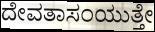
ದೇವತಾಸಂಯುತ್ತೇ